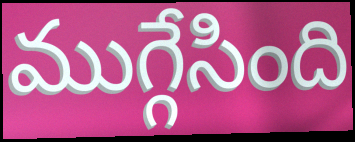
ముగ్గేసింది